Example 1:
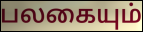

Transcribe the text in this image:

பலகையும்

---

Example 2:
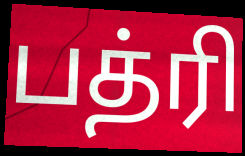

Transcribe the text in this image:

பத்ரி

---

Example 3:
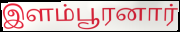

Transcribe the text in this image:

இளம்பூரனார்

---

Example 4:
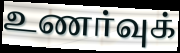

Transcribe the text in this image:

உணர்வுக்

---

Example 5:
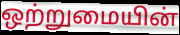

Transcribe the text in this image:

ஒற்றுமையின்